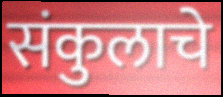
संकुलाचे